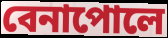
বেনাপোলে